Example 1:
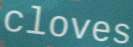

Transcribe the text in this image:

cloves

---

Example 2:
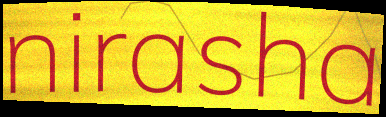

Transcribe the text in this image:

nirasha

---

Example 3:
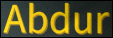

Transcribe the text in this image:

Abdur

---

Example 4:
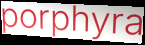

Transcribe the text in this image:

porphyra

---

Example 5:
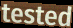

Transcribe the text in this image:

tested